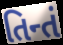
તિન્તં